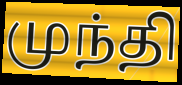
முந்தி